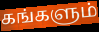
கங்களும்